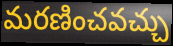
మరణించవచ్చు